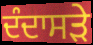
ਦੰਦਾਸੜੇ